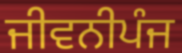
ਜੀਵਨੀਪੰਜ